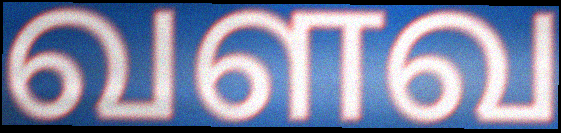
வளவ